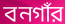
বনগাঁর